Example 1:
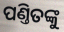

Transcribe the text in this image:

ପଣ୍ତିତଙ୍କୁ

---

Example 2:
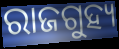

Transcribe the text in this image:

ରାଜଗୁହ୍ୟ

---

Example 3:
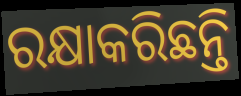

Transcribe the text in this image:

ରକ୍ଷାକରିଛନ୍ତି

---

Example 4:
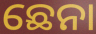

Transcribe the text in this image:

ଛେନା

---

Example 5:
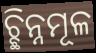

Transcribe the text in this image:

ଚ୍ଛିନ୍ନମୂଳ